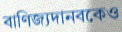
বাণিজ্যদানবকেও